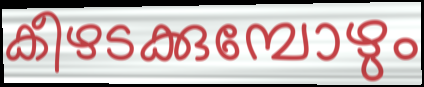
കീഴടക്കുമ്പോഴും